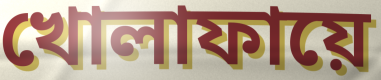
খোলাফায়ে